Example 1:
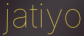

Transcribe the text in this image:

jatiyo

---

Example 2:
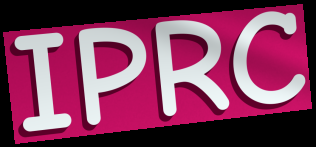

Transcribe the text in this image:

IPRC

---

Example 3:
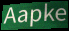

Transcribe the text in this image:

Aapke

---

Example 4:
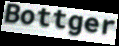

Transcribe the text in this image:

Bottger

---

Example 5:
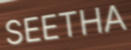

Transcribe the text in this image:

SEETHA